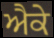
ਐਕੇ